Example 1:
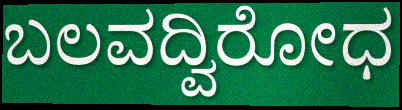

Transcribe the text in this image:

ಬಲವದ್ವಿರೋಧ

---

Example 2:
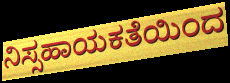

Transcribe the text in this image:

ನಿಸ್ಸಹಾಯಕತೆಯಿಂದ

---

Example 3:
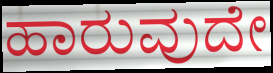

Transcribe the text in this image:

ಹಾರುವುದೇ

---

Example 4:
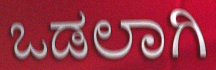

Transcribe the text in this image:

ಒಡಲಾಗಿ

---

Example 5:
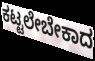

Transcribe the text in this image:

ಕಟ್ಟಲೇಬೇಕಾದ